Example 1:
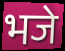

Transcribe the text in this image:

भजे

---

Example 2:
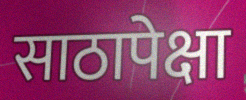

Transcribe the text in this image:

साठापेक्षा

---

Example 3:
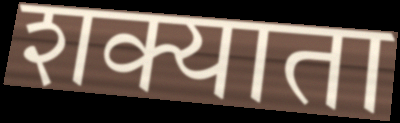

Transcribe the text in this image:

शक्याता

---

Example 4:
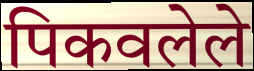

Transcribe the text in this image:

पिकवलेले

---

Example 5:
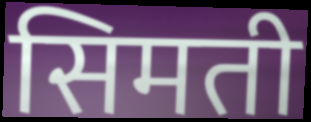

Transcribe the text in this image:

सिमती